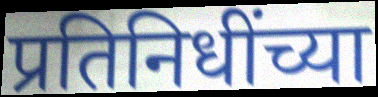
प्रतिनिधींच्या